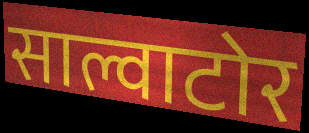
साल्वाटोर